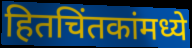
हितचिंतकांमध्ये